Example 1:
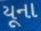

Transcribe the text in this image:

યૂના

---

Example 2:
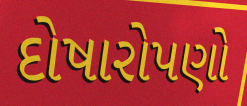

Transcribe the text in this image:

દોષારોપણો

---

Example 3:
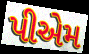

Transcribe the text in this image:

પીએમ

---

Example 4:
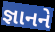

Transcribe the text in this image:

જ્ઞાનને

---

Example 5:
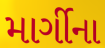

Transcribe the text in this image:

માર્ગીના